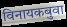
विनायकबुवा